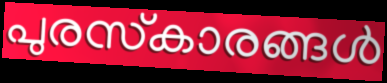
പുരസ്‌കാരങ്ങൾ